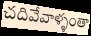
చదివేవాళ్ళంతా